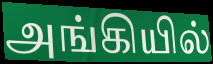
அங்கியில்